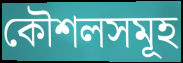
কৌশলসমূহ